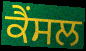
ਕੈਂਸਲ